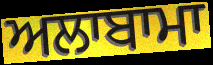
ਅਲਾਬਾਮਾ